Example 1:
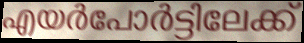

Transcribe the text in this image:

എയർപോർട്ടിലേക്ക്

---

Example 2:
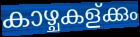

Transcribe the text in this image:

കാഴ്ചകള്ക്കും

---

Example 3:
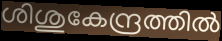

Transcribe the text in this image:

ശിശുകേന്ദ്രത്തിൽ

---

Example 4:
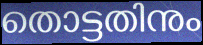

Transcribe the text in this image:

തൊട്ടതിനും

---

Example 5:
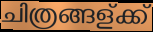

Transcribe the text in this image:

ചിത്രങ്ങള്ക്ക്